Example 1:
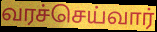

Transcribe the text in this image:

வரச்செய்வார்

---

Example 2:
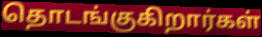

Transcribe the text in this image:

தொடங்குகிறார்கள்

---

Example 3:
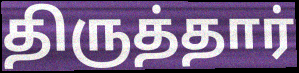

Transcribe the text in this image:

திருத்தார்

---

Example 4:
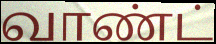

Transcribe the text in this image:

வாண்ட்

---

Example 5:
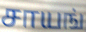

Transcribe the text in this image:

சாயங்